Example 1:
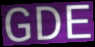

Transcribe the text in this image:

GDE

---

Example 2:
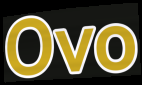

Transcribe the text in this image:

Ovo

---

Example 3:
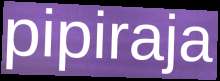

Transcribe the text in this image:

pipiraja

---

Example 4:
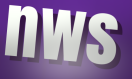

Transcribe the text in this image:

nws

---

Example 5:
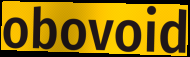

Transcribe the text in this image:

obovoid